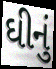
ઘીનું